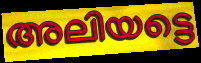
അലിയട്ടെ